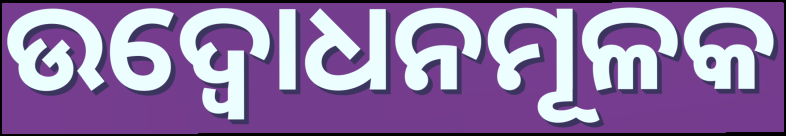
ଉଦ୍ବୋଧନମୂଳକ